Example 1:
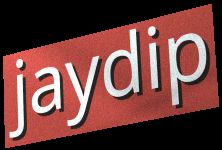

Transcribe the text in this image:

jaydip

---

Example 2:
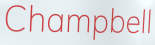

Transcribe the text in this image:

Champbell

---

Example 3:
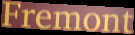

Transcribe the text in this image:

Fremont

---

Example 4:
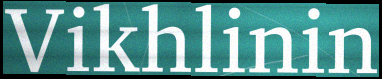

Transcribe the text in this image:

Vikhlinin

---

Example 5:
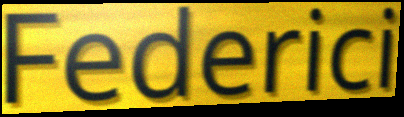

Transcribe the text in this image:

Federici